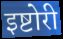
इष्टोरी